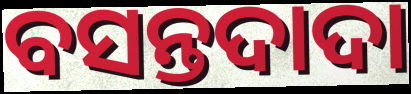
ବସନ୍ତଦାଦା